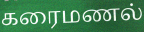
கரைமணல்